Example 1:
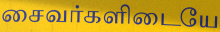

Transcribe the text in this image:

சைவர்களிடையே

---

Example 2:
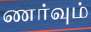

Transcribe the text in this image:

ணர்வும்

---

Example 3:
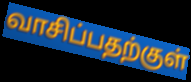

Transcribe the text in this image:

வாசிப்பதற்குள்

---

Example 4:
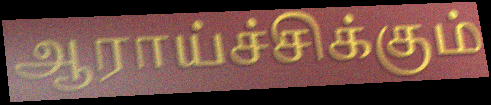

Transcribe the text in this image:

ஆராய்ச்சிக்கும்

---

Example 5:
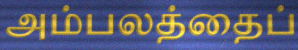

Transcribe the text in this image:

அம்பலத்தைப்